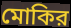
মোকির